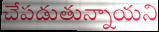
చేపడుతున్నాయని